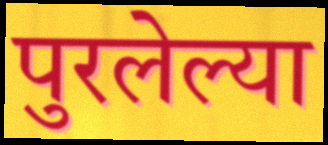
पुरलेल्या